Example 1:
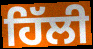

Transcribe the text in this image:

ਹਿੱਲੀ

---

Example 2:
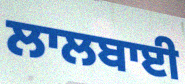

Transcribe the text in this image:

ਲਾਲਬਾਈ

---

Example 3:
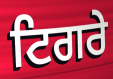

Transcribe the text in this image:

ਟਿਗਰੇ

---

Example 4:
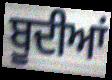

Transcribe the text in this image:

ਬੂਦੀਆਂ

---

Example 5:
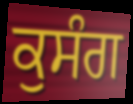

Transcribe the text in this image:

ਕੁਸੰਗ